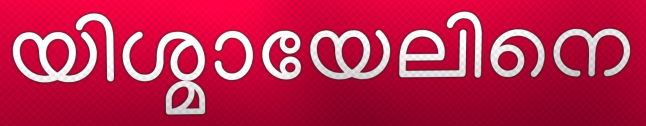
യിശ്മായേലിനെ